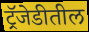
ट्रॅजेडीतील